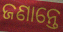
ଜଣାନ୍ତେ